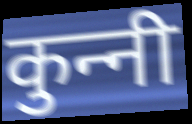
कुन्नी